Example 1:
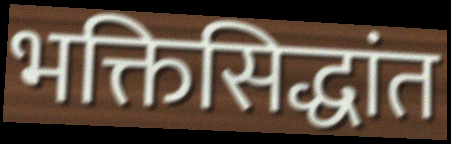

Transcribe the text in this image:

भक्तिसिद्धांत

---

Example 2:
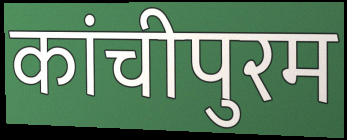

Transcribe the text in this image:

कांचीपुरम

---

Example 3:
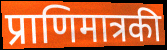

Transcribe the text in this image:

प्राणिमात्रकी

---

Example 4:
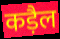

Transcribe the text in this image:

कड़ैल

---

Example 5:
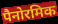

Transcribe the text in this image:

पैनोरमिक